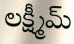
లక్ష్మీమ్